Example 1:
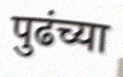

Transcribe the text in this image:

पुढंच्या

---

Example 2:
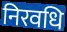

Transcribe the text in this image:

निरवधि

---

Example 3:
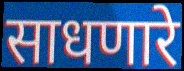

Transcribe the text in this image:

साधणारे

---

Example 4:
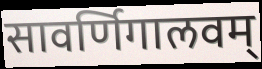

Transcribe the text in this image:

सावर्णिगालवम्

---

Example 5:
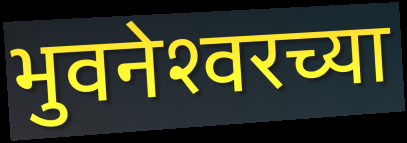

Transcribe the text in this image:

भुवनेश्वरच्या